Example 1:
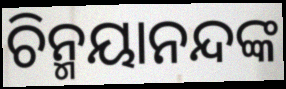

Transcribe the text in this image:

ଚିନ୍ମୟାନନ୍ଦଙ୍କ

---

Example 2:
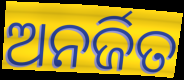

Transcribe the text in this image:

ଅନର୍ଜିତ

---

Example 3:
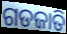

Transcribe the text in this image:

ଗଡଜାତି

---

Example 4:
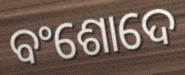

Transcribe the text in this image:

ବଂଶୋଦେ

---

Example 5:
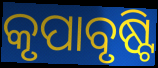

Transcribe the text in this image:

କୃପାବୃଷ୍ଟି